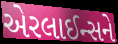
એરલાઈન્સને